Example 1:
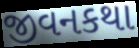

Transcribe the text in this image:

જીવનકથા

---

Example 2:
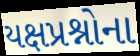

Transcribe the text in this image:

યક્ષપ્રશ્નોના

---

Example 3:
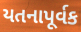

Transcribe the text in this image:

યતનાપૂર્વક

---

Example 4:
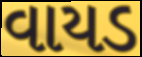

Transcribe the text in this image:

વાયડ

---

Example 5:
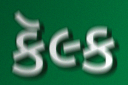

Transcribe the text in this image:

કૅલ્ક